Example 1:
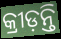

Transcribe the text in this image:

କ୍ରୀଡ଼ନ୍ତି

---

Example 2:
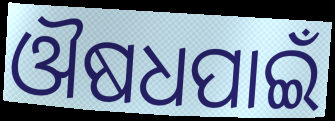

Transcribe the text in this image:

ଔଷଧପାଇଁ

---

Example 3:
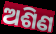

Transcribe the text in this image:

ଅଶିଣ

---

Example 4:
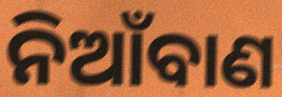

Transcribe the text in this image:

ନିଆଁବାଣ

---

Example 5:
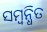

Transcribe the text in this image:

ସମ୍ଵନ୍ଧିତ